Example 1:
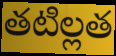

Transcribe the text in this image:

తటిల్లత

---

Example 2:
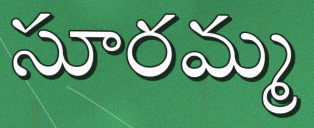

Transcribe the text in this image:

సూరమ్మ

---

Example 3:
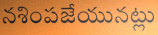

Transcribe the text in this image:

నశింపజేయునట్లు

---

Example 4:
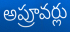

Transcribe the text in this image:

అప్రూవర్లు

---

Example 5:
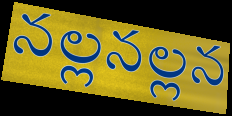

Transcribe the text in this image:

నల్లనల్లన